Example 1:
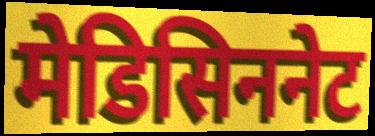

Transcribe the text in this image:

मेडिसिननेट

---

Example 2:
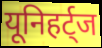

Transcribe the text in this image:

यूनिहर्ट्ज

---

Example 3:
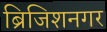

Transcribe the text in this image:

ब्रिजिशनगर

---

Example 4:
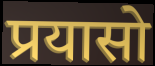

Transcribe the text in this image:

प्रयासो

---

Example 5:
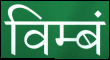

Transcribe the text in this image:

विम्बं